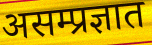
असम्प्रज्ञात